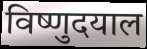
विष्णुदयाल